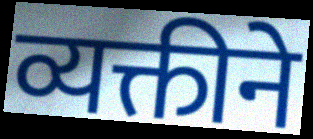
व्यक्तीने